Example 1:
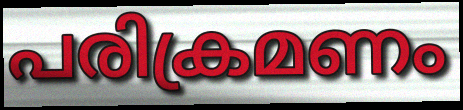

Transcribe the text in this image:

പരിക്രമണം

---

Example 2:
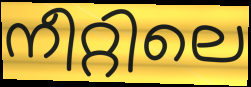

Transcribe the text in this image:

നീറ്റിലെ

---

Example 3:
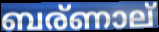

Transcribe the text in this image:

ബര്ണാല്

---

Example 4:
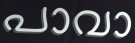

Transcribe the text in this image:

പാവാ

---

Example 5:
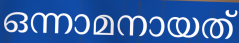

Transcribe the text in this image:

ഒന്നാമനായത്